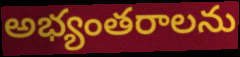
అభ్యంతరాలను